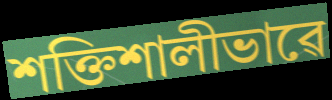
শক্তিশালীভাৱে